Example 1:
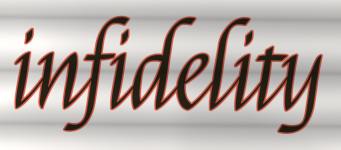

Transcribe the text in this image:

infidelity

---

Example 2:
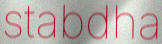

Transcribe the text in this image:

stabdha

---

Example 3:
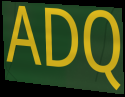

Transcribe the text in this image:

ADQ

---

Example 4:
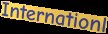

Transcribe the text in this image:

Internationl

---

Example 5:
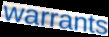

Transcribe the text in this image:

warrants